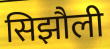
सिझौली